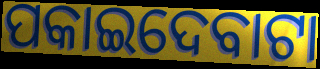
ପକାଇଦେବାଟା